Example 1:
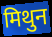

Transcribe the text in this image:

मिथुन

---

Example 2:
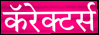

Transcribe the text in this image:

कॅरेक्टर्स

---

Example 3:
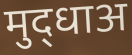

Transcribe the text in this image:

मुद्धाअ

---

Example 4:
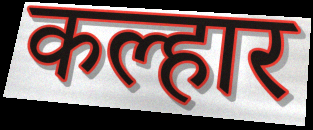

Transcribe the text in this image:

कल्हार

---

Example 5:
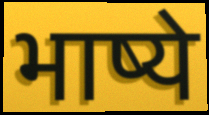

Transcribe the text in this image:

भाष्ये